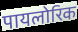
पायलोरिक